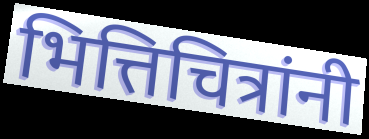
भित्तिचित्रांनी